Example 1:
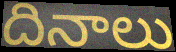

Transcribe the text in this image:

దినాలు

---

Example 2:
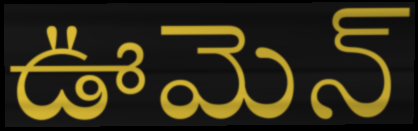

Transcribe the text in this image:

ఊమెన్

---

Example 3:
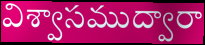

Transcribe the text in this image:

విశ్వాసముద్వారా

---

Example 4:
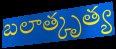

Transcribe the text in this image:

బలాత్కృత్య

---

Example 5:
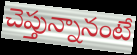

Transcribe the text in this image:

చెప్తున్నానంటే